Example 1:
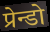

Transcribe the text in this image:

प्रेन्डो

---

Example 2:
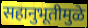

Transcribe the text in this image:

सहानुभूतीमुळे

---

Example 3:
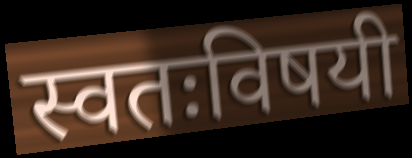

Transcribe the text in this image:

स्वतःविषयी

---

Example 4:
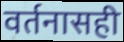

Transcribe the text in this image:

वर्तनासही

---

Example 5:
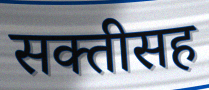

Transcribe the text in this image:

सक्तीसह